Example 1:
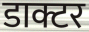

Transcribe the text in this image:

डाक्टर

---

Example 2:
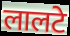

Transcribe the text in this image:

लालटे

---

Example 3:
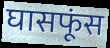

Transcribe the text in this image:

घासफूंस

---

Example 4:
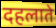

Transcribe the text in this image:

दहलाते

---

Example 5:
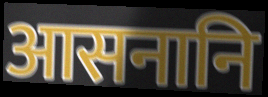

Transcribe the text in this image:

आसनानि